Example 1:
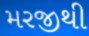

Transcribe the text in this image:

મરજીથી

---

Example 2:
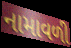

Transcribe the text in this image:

નામાવળી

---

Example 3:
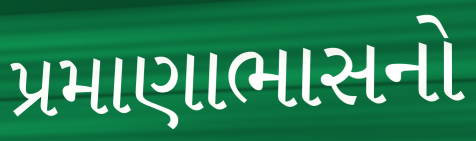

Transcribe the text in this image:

પ્રમાણાભાસનો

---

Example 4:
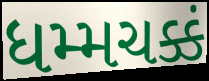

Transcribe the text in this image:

ધમ્મચક્કં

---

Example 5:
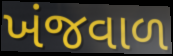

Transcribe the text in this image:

ખંજવાળ